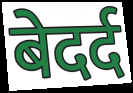
बेदर्द